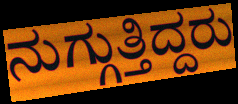
ನುಗ್ಗುತ್ತಿದ್ದರು